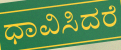
ಧಾವಿಸಿದರೆ